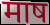
माष